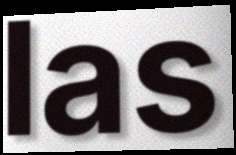
las